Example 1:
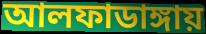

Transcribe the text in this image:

আলফাডাঙ্গায়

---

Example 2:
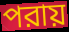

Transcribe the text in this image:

পরায়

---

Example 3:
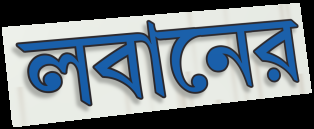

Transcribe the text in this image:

লবানের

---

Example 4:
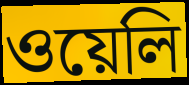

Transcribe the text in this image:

ওয়েলি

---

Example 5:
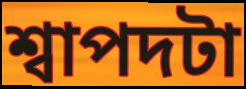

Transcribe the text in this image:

শ্বাপদটা